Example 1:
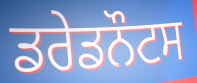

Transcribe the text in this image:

ਡਰੇਡਨੌਟਸ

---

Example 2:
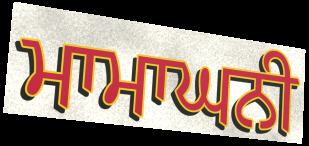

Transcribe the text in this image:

ਮਾਮਾਘਨੀ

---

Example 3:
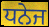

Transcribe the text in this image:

ਧਨੇਜ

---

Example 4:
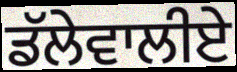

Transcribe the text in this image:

ਡੱਲੇਵਾਲੀਏ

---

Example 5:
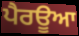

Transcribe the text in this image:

ਪੈਰਊਆ